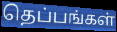
தெப்பங்கள்